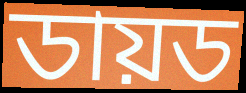
ডায়ড